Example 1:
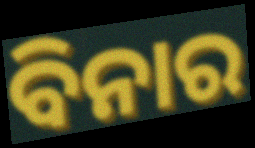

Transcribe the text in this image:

ବିନାର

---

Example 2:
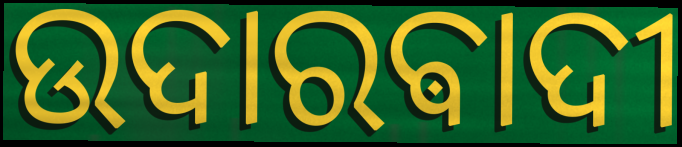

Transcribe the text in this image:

ଉଦାରଵାଦୀ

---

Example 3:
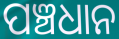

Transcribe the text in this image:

ପଞ୍ଚଧାନ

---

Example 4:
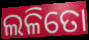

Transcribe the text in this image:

ଲଳିତୋ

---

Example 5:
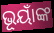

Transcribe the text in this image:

ଭୂୟାଁଙ୍କ